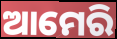
ଆମେରି